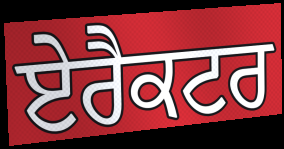
ਏਰੈਕਟਰ